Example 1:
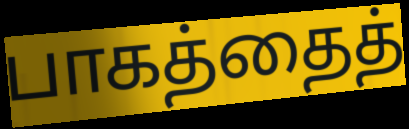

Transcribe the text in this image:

பாகத்தைத்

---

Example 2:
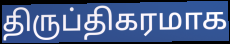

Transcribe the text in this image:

திருப்திகரமாக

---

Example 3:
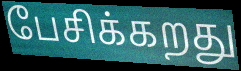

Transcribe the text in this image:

பேசிக்கறது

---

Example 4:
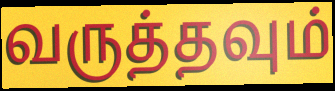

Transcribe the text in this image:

வருத்தவும்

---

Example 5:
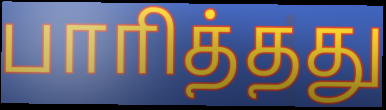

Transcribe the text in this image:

பாரித்தது